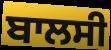
ਬਾਲਸੀ